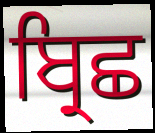
ਬ੍ਰਿਛ